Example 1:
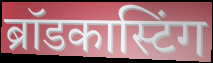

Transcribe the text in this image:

ब्रॉडकास्टिंग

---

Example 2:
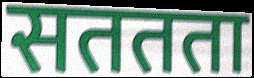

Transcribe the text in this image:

सततता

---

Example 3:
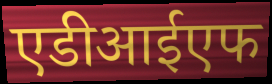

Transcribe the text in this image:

एडीआईएफ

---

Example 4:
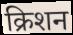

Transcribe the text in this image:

क्रिशन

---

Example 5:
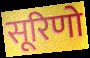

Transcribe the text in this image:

सूरिणो